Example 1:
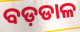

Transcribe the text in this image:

ବଡ଼ଡାଳ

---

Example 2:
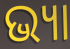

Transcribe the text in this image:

ଭ୍ୟା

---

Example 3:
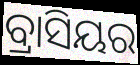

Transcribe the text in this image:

ବ୍ରାସିୟର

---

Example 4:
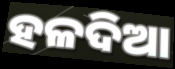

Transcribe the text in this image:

ହଳଦିଆ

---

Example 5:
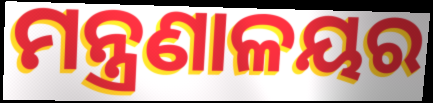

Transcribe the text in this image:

ମନ୍ତ୍ରଣାଳୟର